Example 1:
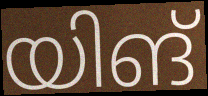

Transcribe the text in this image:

യിങ്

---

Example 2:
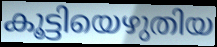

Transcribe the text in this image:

കൂട്ടിയെഴുതിയ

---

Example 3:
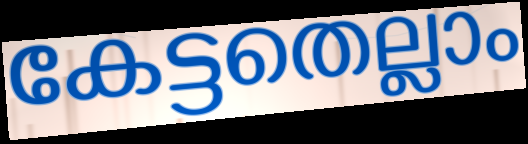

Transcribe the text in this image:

കേട്ടതെല്ലാം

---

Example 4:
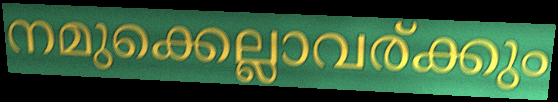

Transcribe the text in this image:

നമുക്കെല്ലാവര്ക്കും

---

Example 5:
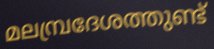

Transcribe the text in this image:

മലമ്പ്രദേശത്തുണ്ട്